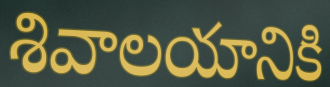
శివాలయానికి